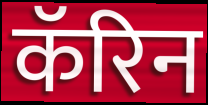
कॅरिन